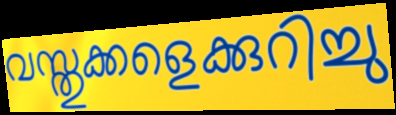
വസ്തുക്കളെക്കുറിച്ചു